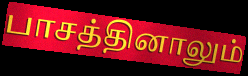
பாசத்தினாலும்